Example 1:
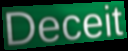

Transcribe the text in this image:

Deceit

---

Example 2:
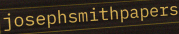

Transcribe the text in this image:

josephsmithpapers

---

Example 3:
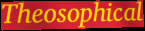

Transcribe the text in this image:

Theosophical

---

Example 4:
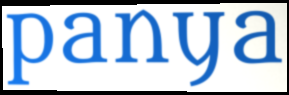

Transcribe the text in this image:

panya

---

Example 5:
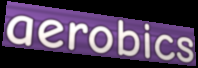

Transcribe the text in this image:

aerobics